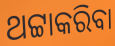
ଥଟ୍ଟାକରିବା